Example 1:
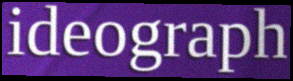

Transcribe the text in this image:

ideograph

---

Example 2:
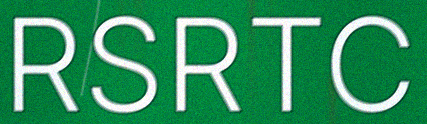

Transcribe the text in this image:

RSRTC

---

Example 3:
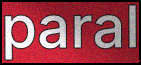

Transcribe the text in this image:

paral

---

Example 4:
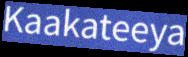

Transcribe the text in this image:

Kaakateeya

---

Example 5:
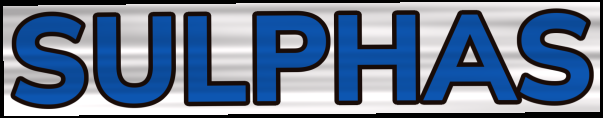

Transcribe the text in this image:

SULPHAS